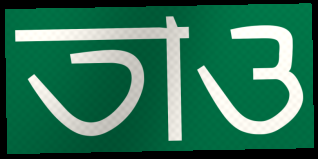
তাও